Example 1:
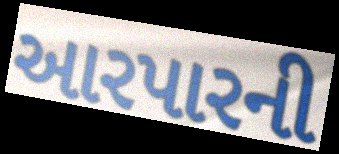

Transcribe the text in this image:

આરપારની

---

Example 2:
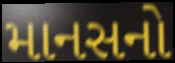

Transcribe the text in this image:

માનસનો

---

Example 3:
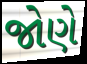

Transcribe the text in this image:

જોણે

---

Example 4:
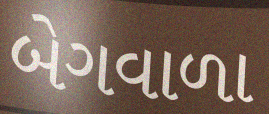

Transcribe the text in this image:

બેગવાળા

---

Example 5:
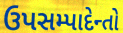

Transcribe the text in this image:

ઉપસમ્પાદેન્તો